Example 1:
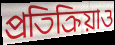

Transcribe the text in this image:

প্রতিক্রিয়াও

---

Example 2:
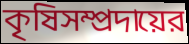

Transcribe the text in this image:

কৃষিসম্প্রদায়ের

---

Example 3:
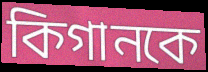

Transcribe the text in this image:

কিগানকে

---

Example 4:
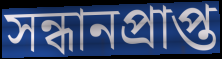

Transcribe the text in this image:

সন্ধানপ্রাপ্ত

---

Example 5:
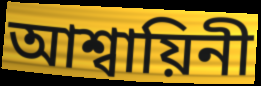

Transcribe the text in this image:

আশ্বায়িনী